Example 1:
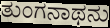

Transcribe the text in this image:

ತುಂಗನಾಥನು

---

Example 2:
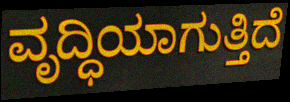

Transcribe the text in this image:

ವೃದ್ಧಿಯಾಗುತ್ತಿದೆ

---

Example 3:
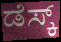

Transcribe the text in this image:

ಡೆಸ್ಕ್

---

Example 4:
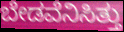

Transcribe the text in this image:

ಬೇಡವೆನಿಸಿತ್ತು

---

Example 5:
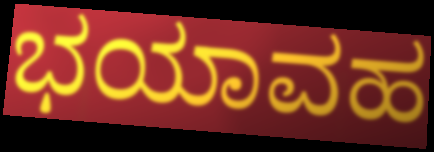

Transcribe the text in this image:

ಭಯಾವಹ